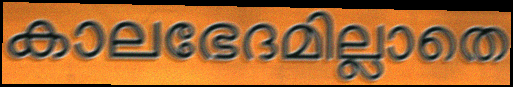
കാലഭേദമില്ലാതെ